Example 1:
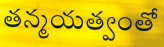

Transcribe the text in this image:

తన్మయత్వంతో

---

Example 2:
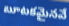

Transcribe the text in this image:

బూటకమైనవే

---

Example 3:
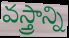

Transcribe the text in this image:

వస్త్రాన్ని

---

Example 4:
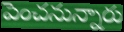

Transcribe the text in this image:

పెంచనున్నారు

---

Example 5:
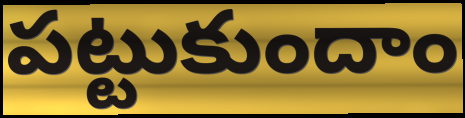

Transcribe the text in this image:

పట్టుకుందాం